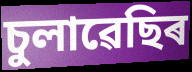
চুলাৱেছিৰ